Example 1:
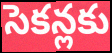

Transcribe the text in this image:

సెకన్లకు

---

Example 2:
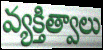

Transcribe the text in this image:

వ్యక్తిత్వాలు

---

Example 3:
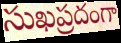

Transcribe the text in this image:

సుఖప్రదంగా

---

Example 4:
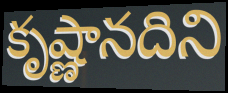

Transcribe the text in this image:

కృష్ణానదిని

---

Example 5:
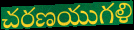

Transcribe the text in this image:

చరణయుగళి